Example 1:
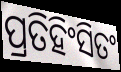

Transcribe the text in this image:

ପ୍ରତିହିଂସିତଂ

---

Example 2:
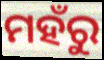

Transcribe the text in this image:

ମହଁରୁ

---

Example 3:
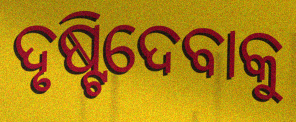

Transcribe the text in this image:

ଦୃଷ୍ଟିଦେବାକୁ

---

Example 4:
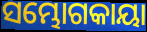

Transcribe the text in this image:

ସମ୍ଭୋଗକାୟା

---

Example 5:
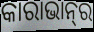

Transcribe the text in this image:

କାରାଭାନ୍‍ର